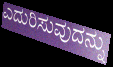
ಎದುರಿಸುವುದನ್ನು